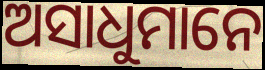
ଅସାଧୁମାନେ